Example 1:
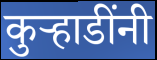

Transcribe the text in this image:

कुर्‍हाडींनी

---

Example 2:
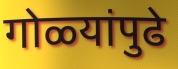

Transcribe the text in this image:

गोळ्यांपुढे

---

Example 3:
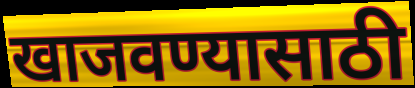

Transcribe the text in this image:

खाजवण्यासाठी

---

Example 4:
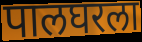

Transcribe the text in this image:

पालघरला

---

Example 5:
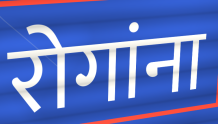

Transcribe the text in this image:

रोगांना